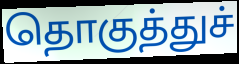
தொகுத்துச்